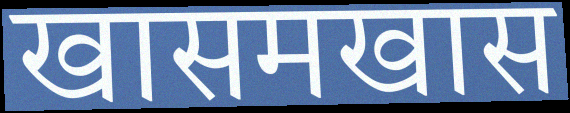
खासमखास